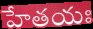
హేతయః